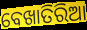
ବେଖାତିରିଆ